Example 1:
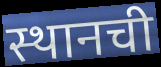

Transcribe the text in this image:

स्थानची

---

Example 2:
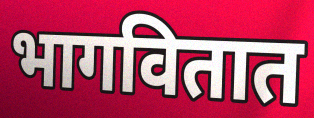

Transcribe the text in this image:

भागवितात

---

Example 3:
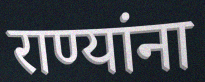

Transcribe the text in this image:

राण्यांना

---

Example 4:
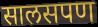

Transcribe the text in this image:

सालसपण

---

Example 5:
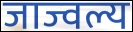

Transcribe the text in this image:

जाज्वल्य